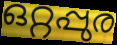
ഒറ്റപ്പുര